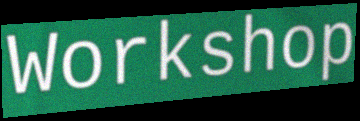
Workshop